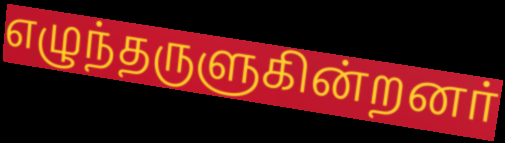
எழுந்தருளுகின்றனர்